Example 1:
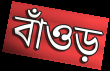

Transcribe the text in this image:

বাঁওড়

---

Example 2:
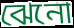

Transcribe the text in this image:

ঝেনো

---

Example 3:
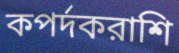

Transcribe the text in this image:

কপর্দকরাশি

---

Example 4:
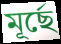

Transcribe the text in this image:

মূর্ছে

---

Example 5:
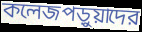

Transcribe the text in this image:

কলেজপড়ুয়াদের